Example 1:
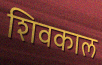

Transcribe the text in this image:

शिवकाल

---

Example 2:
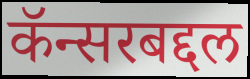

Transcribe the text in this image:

कॅन्सरबद्दल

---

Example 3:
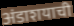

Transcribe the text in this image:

अंडाशयाची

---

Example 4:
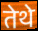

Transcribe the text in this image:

तेथे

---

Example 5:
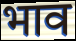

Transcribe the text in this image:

भाव